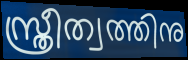
സ്ത്രീത്വത്തിനു